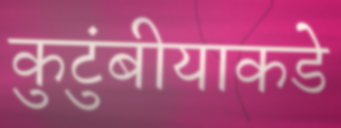
कुटुंबीयाकडे